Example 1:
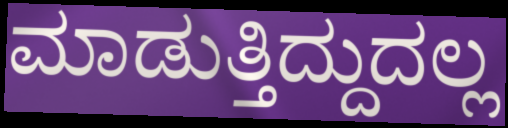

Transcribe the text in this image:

ಮಾಡುತ್ತಿದ್ದುದಲ್ಲ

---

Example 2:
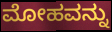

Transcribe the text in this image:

ಮೋಹವನ್ನು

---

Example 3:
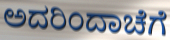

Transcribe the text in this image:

ಅದರಿಂದಾಚೆಗೆ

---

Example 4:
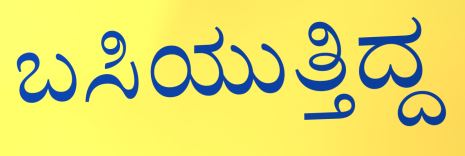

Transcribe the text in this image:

ಬಸಿಯುತ್ತಿದ್ದ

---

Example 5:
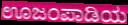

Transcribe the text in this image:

ಊಜಂಪಾಡಿಯ